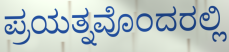
ಪ್ರಯತ್ನವೊಂದರಲ್ಲಿ